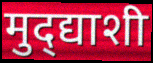
मुद्द्याशी